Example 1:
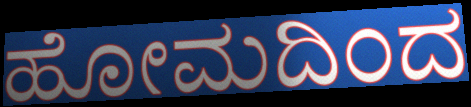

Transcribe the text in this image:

ಹೋಮದಿಂದ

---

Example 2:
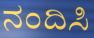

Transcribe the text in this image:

ನಂದಿಸಿ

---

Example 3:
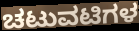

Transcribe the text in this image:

ಚಟುವಟಿಗಳ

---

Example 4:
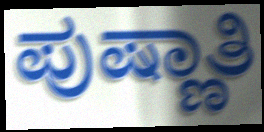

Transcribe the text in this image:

ಪುಷ್ಣಾತಿ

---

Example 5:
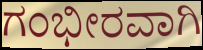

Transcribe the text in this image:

ಗಂಭೀರವಾಗಿ